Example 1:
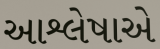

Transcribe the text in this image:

આશ્લેષાએ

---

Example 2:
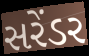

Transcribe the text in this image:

સરેંડર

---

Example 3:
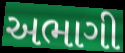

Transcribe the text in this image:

અભાગી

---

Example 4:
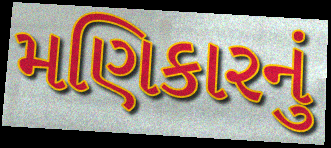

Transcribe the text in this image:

મણિકારનું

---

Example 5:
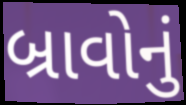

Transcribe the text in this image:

બ્રાવોનું